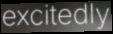
excitedly